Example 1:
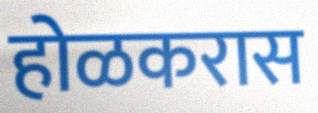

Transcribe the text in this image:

होळकरास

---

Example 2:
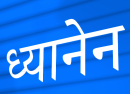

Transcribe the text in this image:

ध्यानेन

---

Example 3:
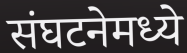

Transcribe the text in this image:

संघटनेमध्ये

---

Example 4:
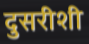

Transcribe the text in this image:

दुसरीशी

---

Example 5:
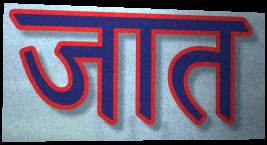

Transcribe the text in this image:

जात